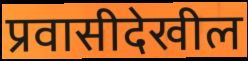
प्रवासीदेखील